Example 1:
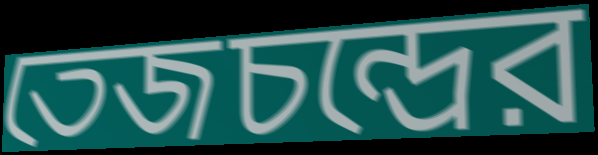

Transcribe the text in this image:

তেজচন্দ্রের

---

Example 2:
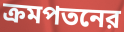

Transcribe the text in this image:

ক্রমপতনের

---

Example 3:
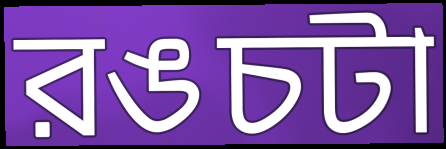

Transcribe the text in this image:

রঙচটা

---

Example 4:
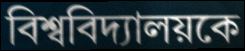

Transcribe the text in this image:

বিশ্ববিদ্যালয়কে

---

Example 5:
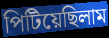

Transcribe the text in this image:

পিটিয়েছিলাম